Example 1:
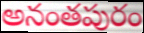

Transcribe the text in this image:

అనంతపురం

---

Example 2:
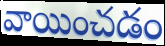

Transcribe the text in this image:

వాయించడం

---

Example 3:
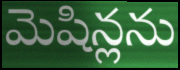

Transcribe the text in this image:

మెషిన్లను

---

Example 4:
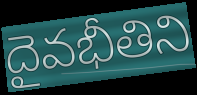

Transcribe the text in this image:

దైవభీతిని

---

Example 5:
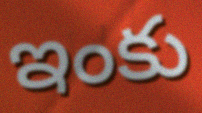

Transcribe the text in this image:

ఇంకు